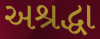
અશ્રદ્ધા